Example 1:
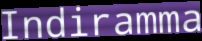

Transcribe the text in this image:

Indiramma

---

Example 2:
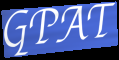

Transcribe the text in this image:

GPAT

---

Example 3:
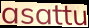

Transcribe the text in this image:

asattu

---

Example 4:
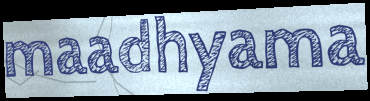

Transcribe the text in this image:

maadhyama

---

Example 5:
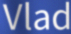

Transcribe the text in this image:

Vlad